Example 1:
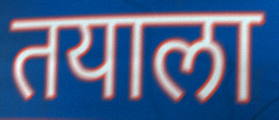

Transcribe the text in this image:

तयाला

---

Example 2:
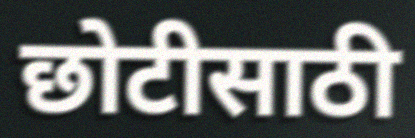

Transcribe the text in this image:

छोटीसाठी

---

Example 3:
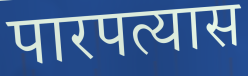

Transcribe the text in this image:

पारपत्यास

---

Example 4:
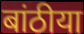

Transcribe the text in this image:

बांठीया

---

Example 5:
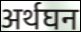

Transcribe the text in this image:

अर्थघन